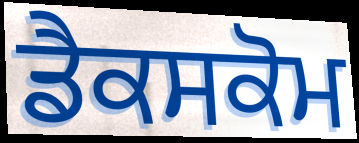
ਡੈਕਸਕੋਮ